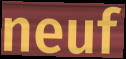
neuf